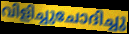
വിളിച്ചുചോദിച്ചു